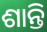
ଶାନ୍ତି